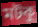
মটকু